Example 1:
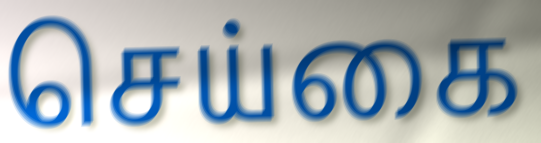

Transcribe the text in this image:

செய்கை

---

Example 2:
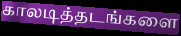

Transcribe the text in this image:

காலடித்தடங்களை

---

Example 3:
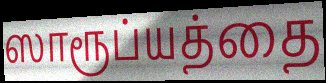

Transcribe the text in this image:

ஸாரூப்யத்தை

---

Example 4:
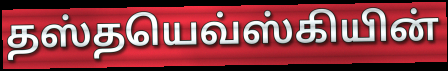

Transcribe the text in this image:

தஸ்தயெவ்ஸ்கியின்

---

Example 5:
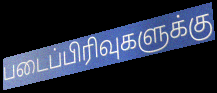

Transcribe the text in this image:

படைப்பிரிவுகளுக்கு